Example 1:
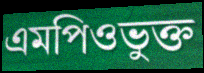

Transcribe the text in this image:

এমপিওভুক্ত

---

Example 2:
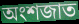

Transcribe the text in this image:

অংশজাত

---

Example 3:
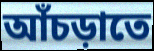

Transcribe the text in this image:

আঁচড়াতে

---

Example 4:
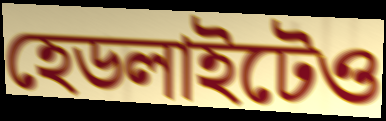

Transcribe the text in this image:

হেডলাইটেও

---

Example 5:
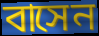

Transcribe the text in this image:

বাসেন